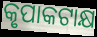
କୃପାକଟାକ୍ଷ